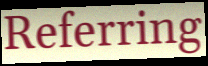
Referring